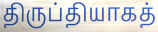
திருப்தியாகத்